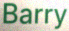
Barry